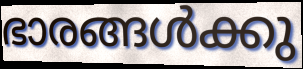
ഭാരങ്ങൾക്കു